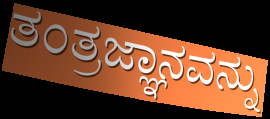
ತಂತ್ರಜ್ಞಾನವನ್ನು